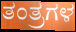
ತಂತ್ರಗಳ